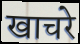
खाचरे